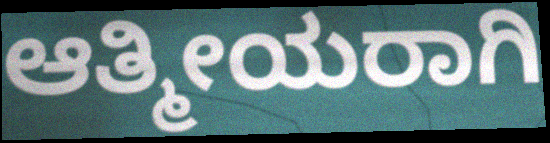
ಆತ್ಮೀಯರಾಗಿ